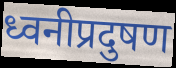
ध्वनीप्रदुषण